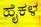
ಹೈಕಳ